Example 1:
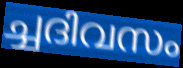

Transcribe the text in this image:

ച്ചദിവസം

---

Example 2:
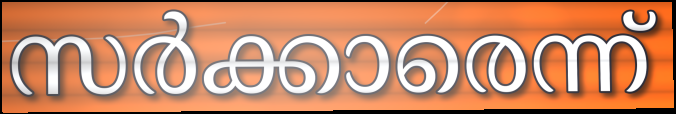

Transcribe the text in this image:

സർക്കാരെന്ന്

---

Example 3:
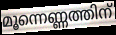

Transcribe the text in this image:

മൂന്നെണ്ണത്തിന്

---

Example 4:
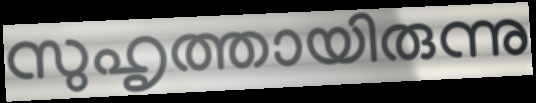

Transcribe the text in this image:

സുഹൃത്തായിരുന്നു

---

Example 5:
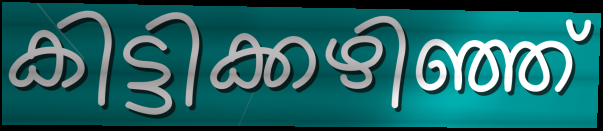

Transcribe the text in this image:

കിട്ടിക്കഴിഞ്ഞ്